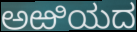
ಅಱಿಯದ